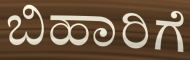
ಬಿಹಾರಿಗೆ